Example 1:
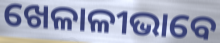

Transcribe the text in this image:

ଖେଳାଳୀଭାବେ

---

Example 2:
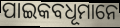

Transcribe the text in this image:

ପାଇକବଧୂମାନେ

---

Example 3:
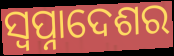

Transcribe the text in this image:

ସ୍ଵପ୍ନାଦେଶର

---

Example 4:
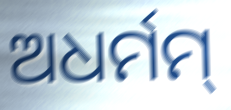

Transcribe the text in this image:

ଅଧର୍ମମ୍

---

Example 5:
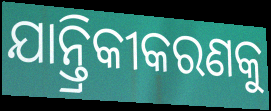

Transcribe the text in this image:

ଯାନ୍ତ୍ରିକୀକରଣକୁ